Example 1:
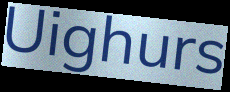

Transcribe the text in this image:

Uighurs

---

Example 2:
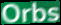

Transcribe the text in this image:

Orbs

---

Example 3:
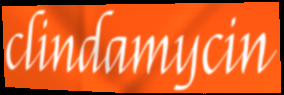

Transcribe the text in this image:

clindamycin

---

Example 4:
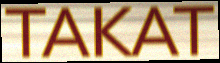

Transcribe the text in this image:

TAKAT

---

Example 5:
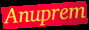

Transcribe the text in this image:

Anuprem